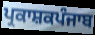
ਪ੍ਰਕਾਸ਼ਕਪੰਜਾਬ